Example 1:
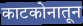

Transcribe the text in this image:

काटकोनातून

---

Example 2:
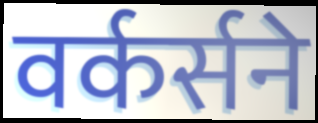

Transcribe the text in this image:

वर्कर्सने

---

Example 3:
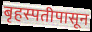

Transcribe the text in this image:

बृहस्पतीपासून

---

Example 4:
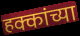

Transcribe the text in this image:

हक्कांच्या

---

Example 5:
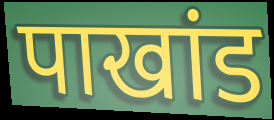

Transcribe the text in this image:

पाखांड